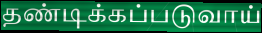
தண்டிக்கப்படுவாய்